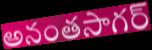
అనంతసాగర్